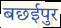
बछईपुर